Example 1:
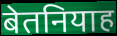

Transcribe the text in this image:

बेतनियाह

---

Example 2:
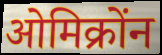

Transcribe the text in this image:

ओमिक्रोंन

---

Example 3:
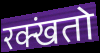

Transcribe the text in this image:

रक्खंतो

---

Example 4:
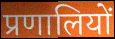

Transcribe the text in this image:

प्रणालियों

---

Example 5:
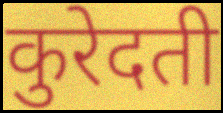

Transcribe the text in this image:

कुरेदती